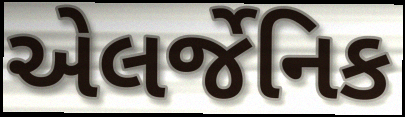
એલર્જેનિક